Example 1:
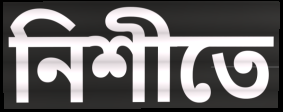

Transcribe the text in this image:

নিশীতে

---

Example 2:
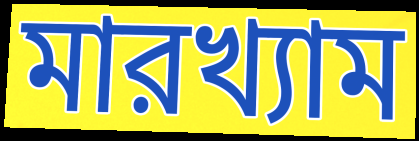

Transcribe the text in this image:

মারখ্যাম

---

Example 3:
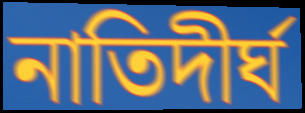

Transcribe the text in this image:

নাতিদীর্ঘ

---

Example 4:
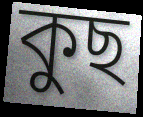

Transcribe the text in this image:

কুছ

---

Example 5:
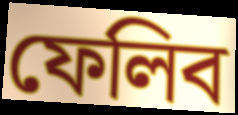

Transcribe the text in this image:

ফেলিব